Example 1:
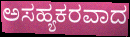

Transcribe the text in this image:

ಅಸಹ್ಯಕರವಾದ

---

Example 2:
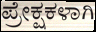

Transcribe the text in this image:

ಪ್ರೇಕ್ಷಕಳಾಗಿ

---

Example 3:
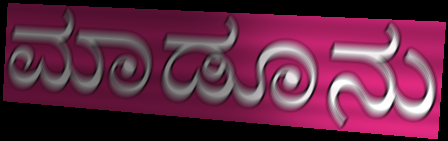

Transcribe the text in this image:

ಮಾಡೂನು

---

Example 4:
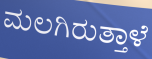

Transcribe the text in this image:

ಮಲಗಿರುತ್ತಾಳೆ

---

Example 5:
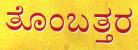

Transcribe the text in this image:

ತೊಂಬತ್ತರ